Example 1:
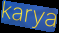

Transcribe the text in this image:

karya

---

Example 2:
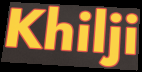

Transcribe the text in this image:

Khilji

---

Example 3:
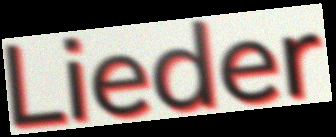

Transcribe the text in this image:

Lieder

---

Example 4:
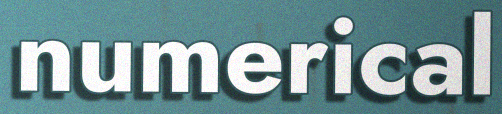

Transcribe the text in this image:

numerical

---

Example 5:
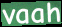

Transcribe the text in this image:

vaah